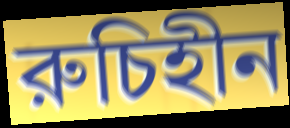
রুচিহীন